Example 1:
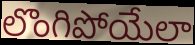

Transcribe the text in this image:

లొంగిపోయేలా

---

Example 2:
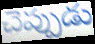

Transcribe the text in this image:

చెప్పుడు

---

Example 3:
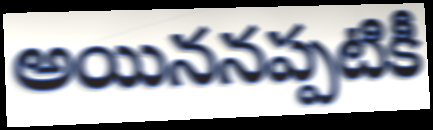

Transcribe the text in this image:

అయిననప్పటికీ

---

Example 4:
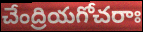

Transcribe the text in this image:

చేంద్రియగోచరాః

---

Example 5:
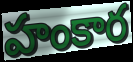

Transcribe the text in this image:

హంకార